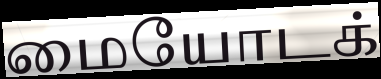
மையோடக்